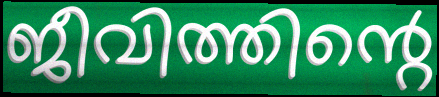
ജീവിത്തിന്റെ